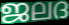
ജലദ